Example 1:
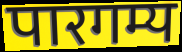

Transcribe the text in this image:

पारगम्य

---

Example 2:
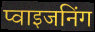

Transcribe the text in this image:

प्वाइजनिंग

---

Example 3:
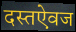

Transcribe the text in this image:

दस्तऐवज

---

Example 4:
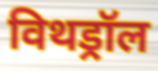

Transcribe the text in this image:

विथड्रॉल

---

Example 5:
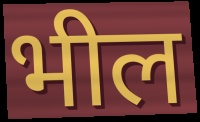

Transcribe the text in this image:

भील